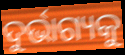
ଦୁର୍ଭାଗ୍ୟକୁ